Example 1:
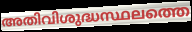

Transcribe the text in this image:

അതിവിശുദ്ധസ്ഥലത്തെ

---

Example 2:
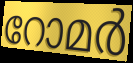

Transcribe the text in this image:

റോമർ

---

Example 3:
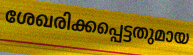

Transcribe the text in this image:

ശേഖരിക്കപ്പെട്ടതുമായ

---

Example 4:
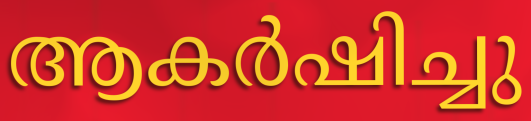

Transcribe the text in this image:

ആകർഷിച്ചു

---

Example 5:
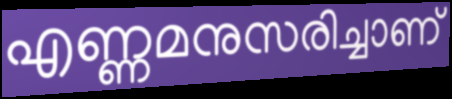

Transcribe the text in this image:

എണ്ണമനുസരിച്ചാണ്